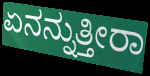
ಏನನ್ನುತ್ತೀರಾ